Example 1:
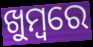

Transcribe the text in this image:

ଖୁମ୍ବରେ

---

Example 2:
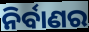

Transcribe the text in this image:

ନିର୍ବାଣର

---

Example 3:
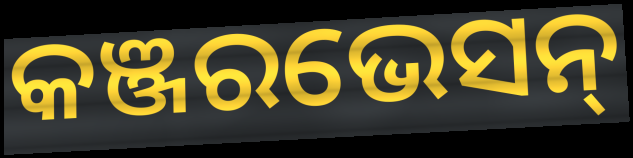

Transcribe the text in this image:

କଞ୍ଜରଭେସନ୍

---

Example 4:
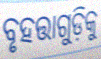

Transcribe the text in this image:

ବୃହତ୍ତାଗୁଡ଼ିକୁ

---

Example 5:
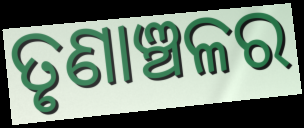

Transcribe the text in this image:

ତୃଣାଞ୍ଚଳର